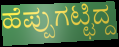
ಹೆಪ್ಪುಗಟ್ಟಿದ್ದ